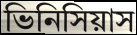
ভিনিসিয়াস